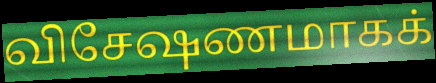
விசேஷணமாகக்